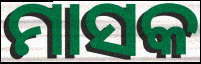
ମାସକ